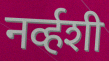
नर्व्हशी